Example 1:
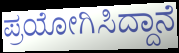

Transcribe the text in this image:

ಪ್ರಯೋಗಿಸಿದ್ದಾನೆ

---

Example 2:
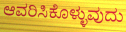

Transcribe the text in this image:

ಆವರಿಸಿಕೊಳ್ಳುವುದು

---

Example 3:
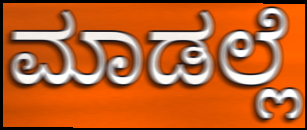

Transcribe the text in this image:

ಮಾಡಲ್ಲೆ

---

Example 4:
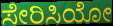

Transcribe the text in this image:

ಸೇರಿಸಿಯೋ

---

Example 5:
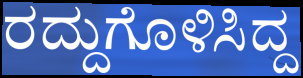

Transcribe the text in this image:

ರದ್ದುಗೊಳಿಸಿದ್ದ